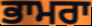
ਭਾਮਰਾ